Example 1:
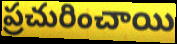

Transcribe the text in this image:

ప్రచురించాయి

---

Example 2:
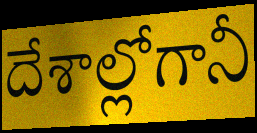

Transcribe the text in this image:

దేశాల్లోగానీ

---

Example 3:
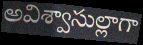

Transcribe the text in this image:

అవిశ్వాసుల్లాగా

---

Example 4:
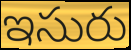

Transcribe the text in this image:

ఇసురు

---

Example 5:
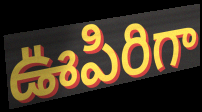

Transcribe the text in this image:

ఊపిరిగా